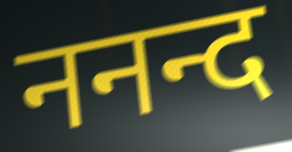
ननन्द